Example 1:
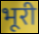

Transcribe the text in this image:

भूरी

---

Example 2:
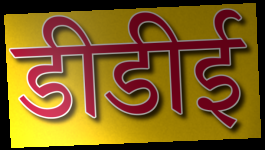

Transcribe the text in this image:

डीडीई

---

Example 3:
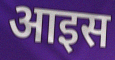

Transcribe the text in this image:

आइस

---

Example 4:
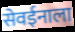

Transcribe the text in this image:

सेवईनाला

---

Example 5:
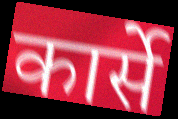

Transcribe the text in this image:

कार्से